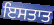
ਇਸਤਾਤ